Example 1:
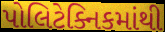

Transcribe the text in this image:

પોલિટેક્નિકમાંથી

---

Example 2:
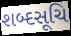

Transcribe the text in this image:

શબ્દસૂચિ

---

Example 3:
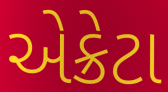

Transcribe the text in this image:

એક્રેટા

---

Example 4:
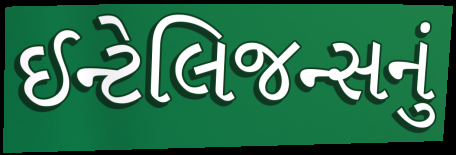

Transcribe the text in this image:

ઈન્ટેલિજન્સનું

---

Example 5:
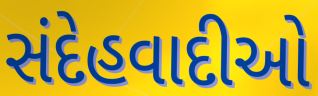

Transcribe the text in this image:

સંદેહવાદીઓ